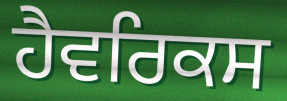
ਹੈਵਰਿਕਸ